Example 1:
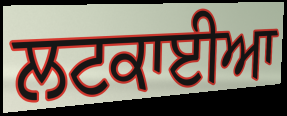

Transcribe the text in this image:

ਲਟਕਾਈਆ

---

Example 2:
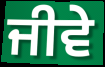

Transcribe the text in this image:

ਜੀਵੇ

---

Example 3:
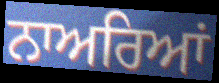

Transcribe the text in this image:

ਨਾਅਰਿਆਂ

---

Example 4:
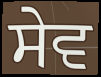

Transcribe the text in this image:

ਸੇਵ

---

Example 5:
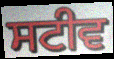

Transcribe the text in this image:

ਸਟੀਵ